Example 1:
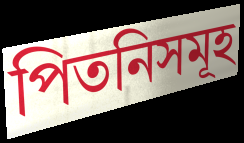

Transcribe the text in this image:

পিতনিসমূহ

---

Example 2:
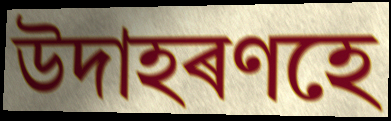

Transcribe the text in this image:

উদাহৰণহে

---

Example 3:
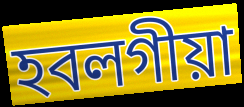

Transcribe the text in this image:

হবলগীয়া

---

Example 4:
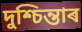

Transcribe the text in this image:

দুশ্চিন্তাৰ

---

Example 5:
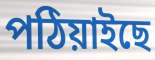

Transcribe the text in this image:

পঠিয়াইছে